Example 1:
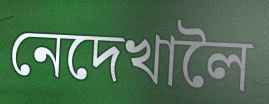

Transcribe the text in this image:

নেদেখালৈ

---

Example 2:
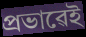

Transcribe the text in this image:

প্ৰভাৱেই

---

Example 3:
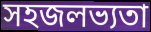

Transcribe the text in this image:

সহজলভ্যতা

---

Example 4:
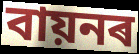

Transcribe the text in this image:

বায়নৰ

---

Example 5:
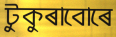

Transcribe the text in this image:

টুকুৰাবোৰে